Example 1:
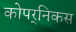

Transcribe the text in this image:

कोपर्निकस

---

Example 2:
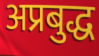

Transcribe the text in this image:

अप्रबुद्ध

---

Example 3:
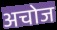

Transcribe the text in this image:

अचोज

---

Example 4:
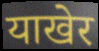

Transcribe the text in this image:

याखेर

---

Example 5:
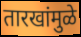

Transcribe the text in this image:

तारखांमुळे